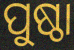
ପୁଷ୍ଠା